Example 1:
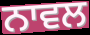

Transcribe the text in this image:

ਨਾਵਲ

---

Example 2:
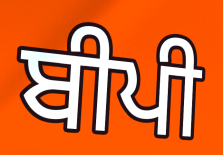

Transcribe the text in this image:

ਬੀਪੀ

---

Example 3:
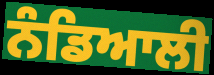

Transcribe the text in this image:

ਨੰਡਿਆਲੀ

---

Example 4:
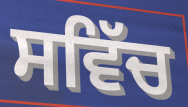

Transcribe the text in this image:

ਸਵਿੱਚ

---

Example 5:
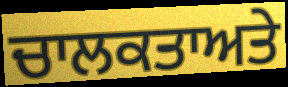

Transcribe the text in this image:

ਚਾਲਕਤਾਅਤੇ